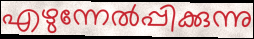
എഴുന്നേൽപ്പിക്കുന്നു